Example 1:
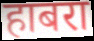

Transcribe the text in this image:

हाबरा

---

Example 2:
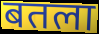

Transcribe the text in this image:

बतला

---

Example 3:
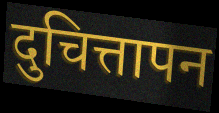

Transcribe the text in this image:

दुचित्तापन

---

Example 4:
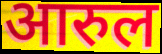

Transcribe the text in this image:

आरुल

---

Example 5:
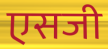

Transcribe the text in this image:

एसजी